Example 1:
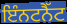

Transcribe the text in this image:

ਇੰਨਟਨੈੱਟ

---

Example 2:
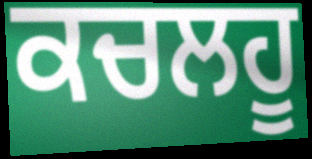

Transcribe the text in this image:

ਕਚਲਹੂ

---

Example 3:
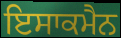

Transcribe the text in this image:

ਇਸਾਕਮੈਨ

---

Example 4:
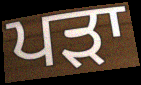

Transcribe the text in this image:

ਪੜਾ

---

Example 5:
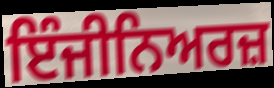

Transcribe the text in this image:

ਇੰਜੀਨਿਅਰਜ਼